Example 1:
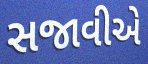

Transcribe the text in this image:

સજાવીએ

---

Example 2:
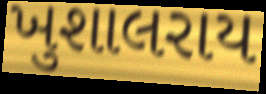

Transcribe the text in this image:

ખુશાલરાય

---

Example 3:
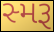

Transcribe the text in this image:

સ્મરૂ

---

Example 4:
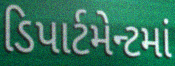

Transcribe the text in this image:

ડિપાર્ટમેન્ટમાં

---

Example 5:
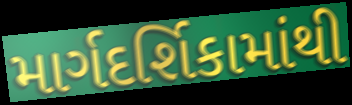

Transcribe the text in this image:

માર્ગદર્શિકામાંથી